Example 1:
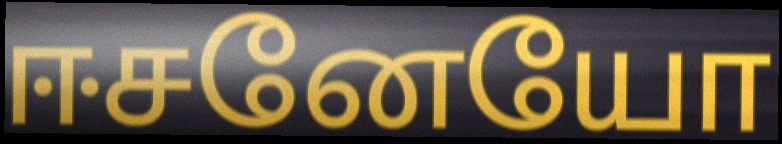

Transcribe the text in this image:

ஈசனேயோ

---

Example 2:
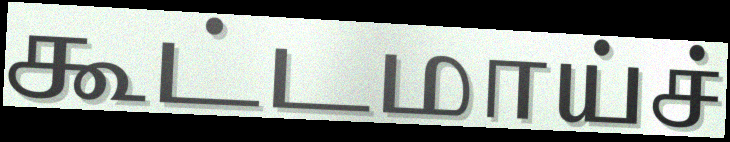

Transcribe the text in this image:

கூட்டமாய்ச்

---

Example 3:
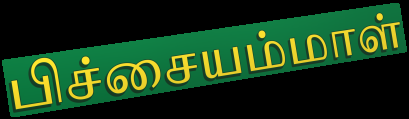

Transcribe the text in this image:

பிச்சையம்மாள்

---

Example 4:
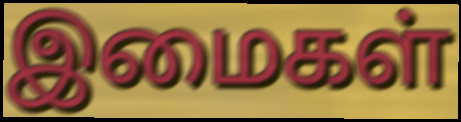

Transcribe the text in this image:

இமைகள்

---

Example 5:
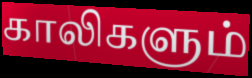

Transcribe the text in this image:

காலிகளும்